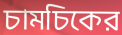
চামচিকের